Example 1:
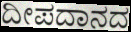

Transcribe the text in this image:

ದೀಪದಾನದ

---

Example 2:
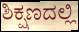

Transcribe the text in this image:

ಶಿಕ್ಷಣದಲ್ಲಿ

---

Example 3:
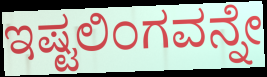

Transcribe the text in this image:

ಇಷ್ಟಲಿಂಗವನ್ನೇ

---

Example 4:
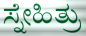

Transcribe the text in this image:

ಸ್ನೇಹಿತ್ರು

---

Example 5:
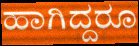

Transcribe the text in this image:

ಹಾಗಿದ್ದರೂ